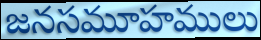
జనసమూహములు